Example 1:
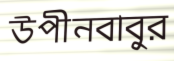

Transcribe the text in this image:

উপীনবাবুর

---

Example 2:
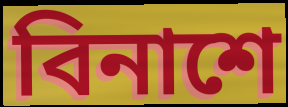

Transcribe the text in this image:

বিনাশে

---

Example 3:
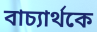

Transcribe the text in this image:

বাচ্যার্থকে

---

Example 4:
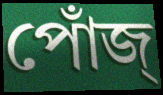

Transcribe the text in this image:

পোঁজ্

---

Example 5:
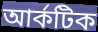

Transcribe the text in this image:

আর্কটিক